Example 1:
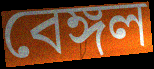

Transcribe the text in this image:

বেঙ্গল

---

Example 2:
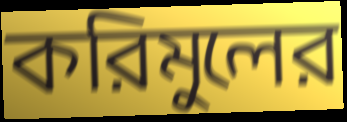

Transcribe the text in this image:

করিমুলের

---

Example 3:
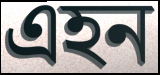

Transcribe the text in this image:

এহন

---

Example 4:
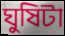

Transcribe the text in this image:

ঘুষিটা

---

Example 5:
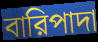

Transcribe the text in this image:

বারিপাদা